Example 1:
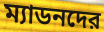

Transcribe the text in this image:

ম্যাডনদের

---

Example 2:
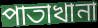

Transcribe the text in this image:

পাতাখানা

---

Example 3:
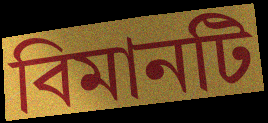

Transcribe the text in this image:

বিমানটি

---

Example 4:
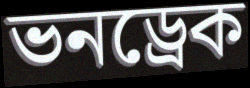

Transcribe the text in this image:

ভনড্রেক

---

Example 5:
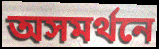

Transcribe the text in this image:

অসমর্থনে